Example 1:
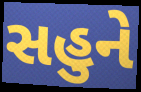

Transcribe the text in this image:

સહુને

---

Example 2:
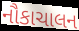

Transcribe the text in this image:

નૌકાચાલન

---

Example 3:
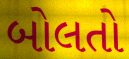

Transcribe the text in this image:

બોલતો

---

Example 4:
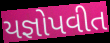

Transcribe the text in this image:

યજ્ઞોપવીત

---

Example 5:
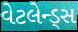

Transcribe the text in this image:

વેટલેન્ડ્સ